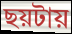
ছয়টায়